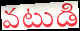
వటుడి